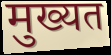
मुख्यत